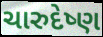
ચારુદેષ્ણ